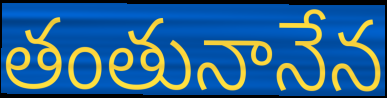
తంతునానేన